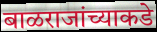
बाळराजांच्याकडे